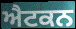
ਐਟਕਨ